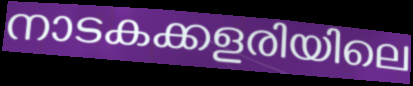
നാടകക്കളരിയിലെ